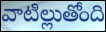
వాటిల్లుతోంది